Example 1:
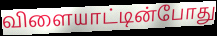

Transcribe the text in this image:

விளையாட்டின்போது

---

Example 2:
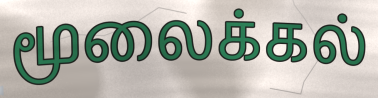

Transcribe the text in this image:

மூலைக்கல்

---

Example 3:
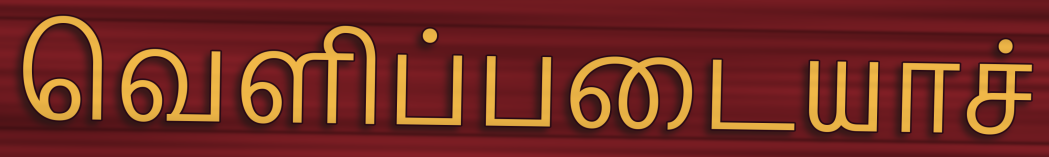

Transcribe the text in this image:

வெளிப்படையாச்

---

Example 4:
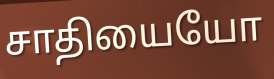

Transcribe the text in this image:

சாதியையோ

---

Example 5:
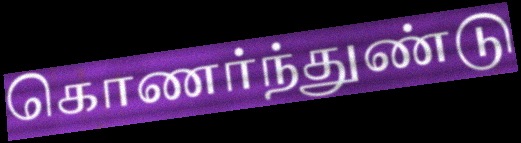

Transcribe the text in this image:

கொணர்ந்துண்டு